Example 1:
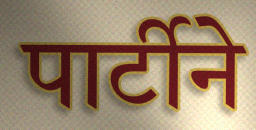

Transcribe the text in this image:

पार्टीने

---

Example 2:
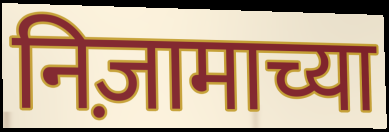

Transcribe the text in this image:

निज़ामाच्या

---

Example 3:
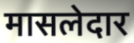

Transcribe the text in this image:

मासलेदार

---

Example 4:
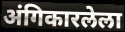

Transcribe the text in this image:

अंगिकारलेला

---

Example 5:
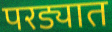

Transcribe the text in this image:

परड्यात